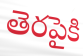
తెరపైకి